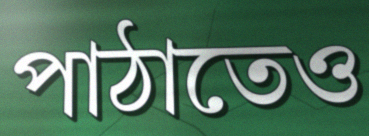
পাঠাতেও